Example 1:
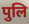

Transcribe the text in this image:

पुलि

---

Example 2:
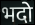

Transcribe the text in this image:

भदो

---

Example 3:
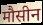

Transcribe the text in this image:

मौसीन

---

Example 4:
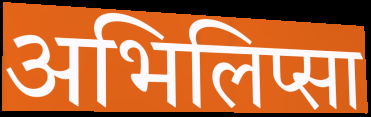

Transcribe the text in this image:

अभिलिप्सा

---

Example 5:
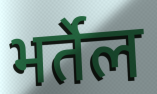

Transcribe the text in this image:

भर्तेल